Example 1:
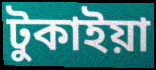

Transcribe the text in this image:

টুকাইয়া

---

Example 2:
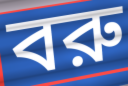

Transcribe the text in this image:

বরু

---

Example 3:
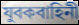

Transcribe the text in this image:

যুবকবাহিনী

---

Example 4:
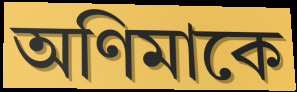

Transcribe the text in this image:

অণিমাকে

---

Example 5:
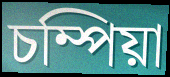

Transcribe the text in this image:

চম্পিয়া